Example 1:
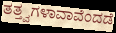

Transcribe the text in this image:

ತತ್ತ್ವಗಳಾವಾವೆಂದಡೆ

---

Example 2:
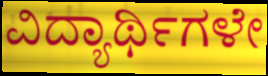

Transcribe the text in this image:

ವಿದ್ಯಾರ್ಥಿಗಳೇ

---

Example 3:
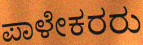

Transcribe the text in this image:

ಪಾಳೇಕರರು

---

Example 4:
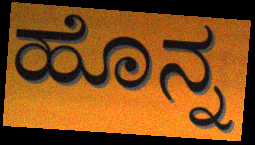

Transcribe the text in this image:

ಹೊನ್ನ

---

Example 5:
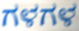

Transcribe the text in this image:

ಗಳಗಳ